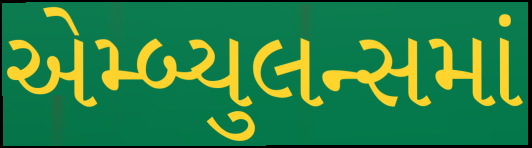
એમ્બ્યુલન્સમાં